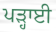
ਪੜ੍ਹਾਈ